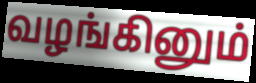
வழங்கினும்